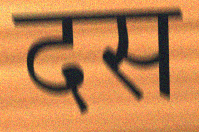
दस